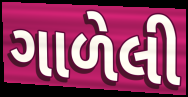
ગાળેલી